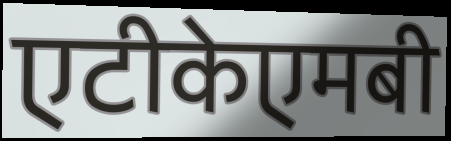
एटीकेएमबी